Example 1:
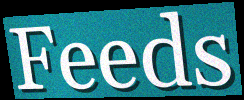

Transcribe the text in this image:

Feeds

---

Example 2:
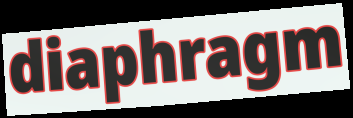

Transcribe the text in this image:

diaphragm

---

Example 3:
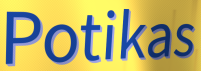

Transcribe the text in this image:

Potikas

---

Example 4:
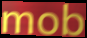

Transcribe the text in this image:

mob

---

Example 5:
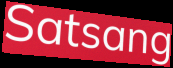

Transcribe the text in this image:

Satsang